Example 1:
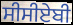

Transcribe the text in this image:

ਸੀਸੀਏਬੀ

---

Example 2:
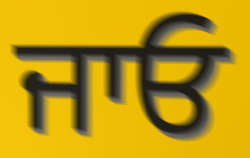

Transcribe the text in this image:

ਜਾਓ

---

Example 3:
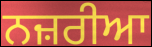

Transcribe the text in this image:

ਨਜ਼ਰੀਆ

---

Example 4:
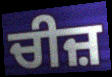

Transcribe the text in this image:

ਚੀਜ਼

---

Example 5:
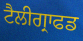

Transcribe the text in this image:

ਟੈਲੀਗ੍ਰਾਫਡ